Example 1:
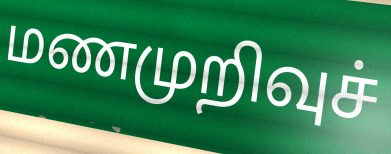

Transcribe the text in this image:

மணமுறிவுச்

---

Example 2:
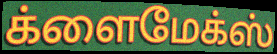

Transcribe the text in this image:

க்ளைமேக்ஸ்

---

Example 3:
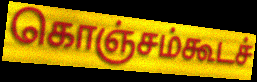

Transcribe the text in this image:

கொஞ்சம்கூடச்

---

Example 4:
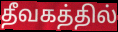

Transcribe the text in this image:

தீவகத்தில்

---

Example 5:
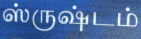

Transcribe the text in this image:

ஸ்ருஷ்டம்